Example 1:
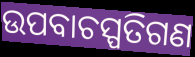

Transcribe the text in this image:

ଉପବାଚସ୍ପତିଗଣ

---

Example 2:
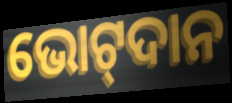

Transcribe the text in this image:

ଭୋଟ୍‌ଦାନ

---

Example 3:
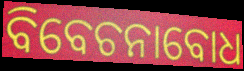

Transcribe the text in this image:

ବିବେଚନାବୋଧ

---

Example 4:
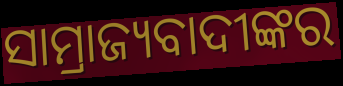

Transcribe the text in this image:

ସାମ୍ରାଜ୍ୟବାଦୀଙ୍କର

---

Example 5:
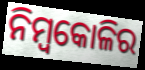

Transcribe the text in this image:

ନିମ୍ବକୋଳିର